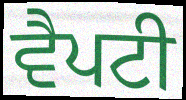
ਵੈਪਟੀ